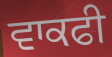
ਵਾਕਫੀ